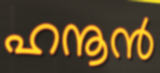
ഹനൂൻ